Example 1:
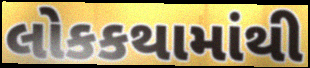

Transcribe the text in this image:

લોકકથામાંથી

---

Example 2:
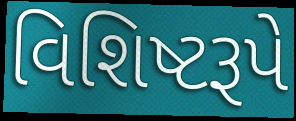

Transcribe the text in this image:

વિશિષ્ટરૂપે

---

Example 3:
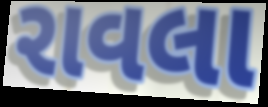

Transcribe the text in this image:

રાવલા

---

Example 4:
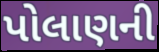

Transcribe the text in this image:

પોલાણની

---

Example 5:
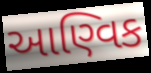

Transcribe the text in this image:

આણ્વિક